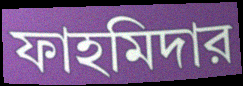
ফাহমিদার